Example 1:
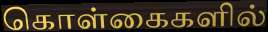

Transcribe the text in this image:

கொள்கைகளில்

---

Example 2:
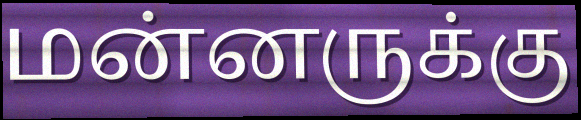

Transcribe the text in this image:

மன்னருக்கு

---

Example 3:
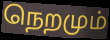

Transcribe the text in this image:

நெறமும்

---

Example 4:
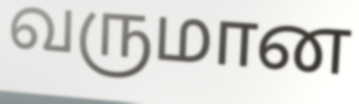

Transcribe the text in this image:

வருமான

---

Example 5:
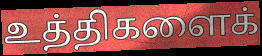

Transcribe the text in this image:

உத்திகளைக்